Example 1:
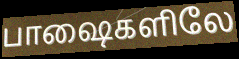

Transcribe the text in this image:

பாஷைகளிலே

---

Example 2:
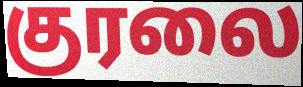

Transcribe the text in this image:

குரலை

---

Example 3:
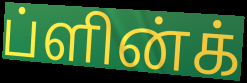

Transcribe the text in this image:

ப்ளின்க்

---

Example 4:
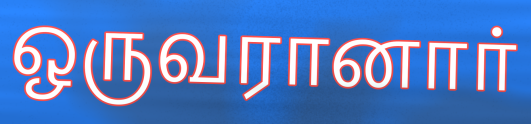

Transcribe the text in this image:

ஒருவரானார்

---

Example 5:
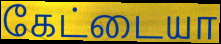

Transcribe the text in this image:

கேட்டையா